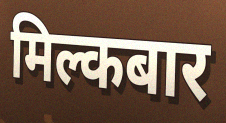
मिल्कबार